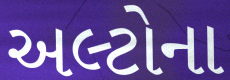
અલ્ટોના